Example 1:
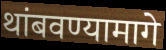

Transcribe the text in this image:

थांबवण्यामागे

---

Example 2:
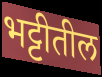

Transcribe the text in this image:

भट्टीतील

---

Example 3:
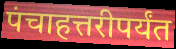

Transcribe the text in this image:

पंचाहत्तरीपर्यंत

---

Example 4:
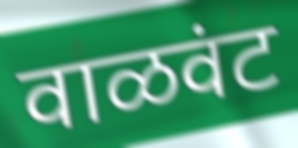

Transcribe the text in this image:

वाळवंट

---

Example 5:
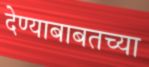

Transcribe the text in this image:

देण्याबाबतच्या